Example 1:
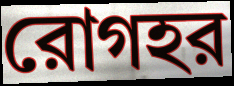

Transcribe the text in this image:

রোগহর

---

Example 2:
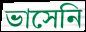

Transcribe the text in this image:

ভাসেনি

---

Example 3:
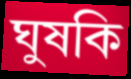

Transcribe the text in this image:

ঘুষকি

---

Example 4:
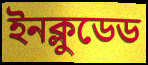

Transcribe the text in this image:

ইনক্লুডেড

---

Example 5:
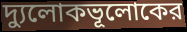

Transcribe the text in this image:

দ্যুলোকভূলোকের